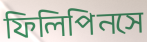
ফিলিপিনসে